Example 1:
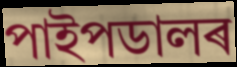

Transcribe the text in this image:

পাইপডালৰ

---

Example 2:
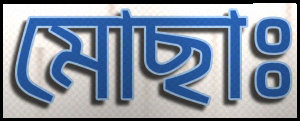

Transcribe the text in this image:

মোছাঃ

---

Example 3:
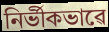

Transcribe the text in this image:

নিৰ্ভীকভাৱে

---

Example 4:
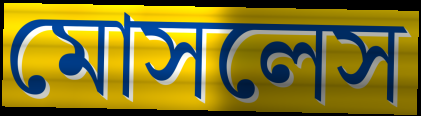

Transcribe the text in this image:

মোসলেস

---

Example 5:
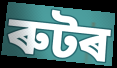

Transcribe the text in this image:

ৰুটৰ